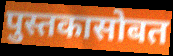
पुस्तकासोबत